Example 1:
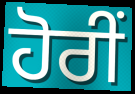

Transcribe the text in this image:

ਹੋਰੀਂ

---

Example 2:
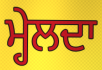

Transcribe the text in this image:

ਮ੍ਹੇਲਦਾ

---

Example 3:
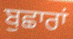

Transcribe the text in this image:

ਬੁਛਾਰਾਂ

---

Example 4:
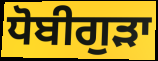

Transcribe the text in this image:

ਧੋਬੀਗੁੜਾ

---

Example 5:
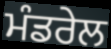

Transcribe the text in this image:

ਮੰਡਰੇਲ